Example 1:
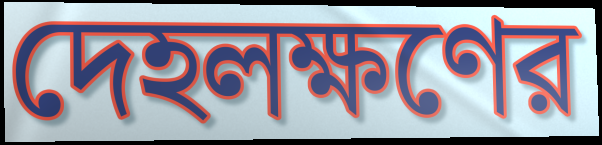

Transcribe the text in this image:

দেহলক্ষণের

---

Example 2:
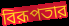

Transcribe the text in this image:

বিরূপতার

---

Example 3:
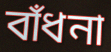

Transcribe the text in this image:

বাঁধনা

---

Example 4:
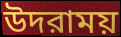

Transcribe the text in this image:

উদরাময়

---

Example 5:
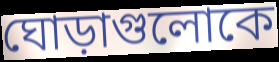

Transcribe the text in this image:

ঘোড়াগুলোকে